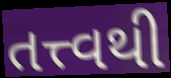
તત્ત્વથી